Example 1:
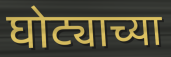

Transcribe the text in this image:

घोट्याच्या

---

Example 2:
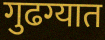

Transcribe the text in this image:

गुढग्यात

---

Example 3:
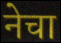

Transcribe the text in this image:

नेचा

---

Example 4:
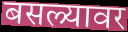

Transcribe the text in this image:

बसल्यावर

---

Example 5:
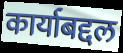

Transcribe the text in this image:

कार्याबद्दल